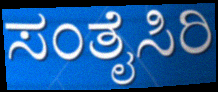
ಸಂತೈಸಿರಿ